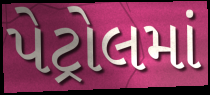
પેટ્રોલમાં